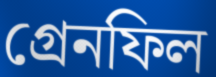
গ্রেনফিল